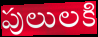
పులులకి